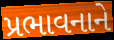
પ્રભાવનાને